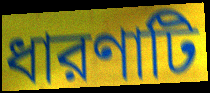
ধারণাটি